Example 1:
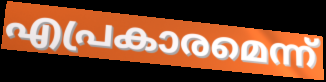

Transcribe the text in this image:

എപ്രകാരമെന്ന്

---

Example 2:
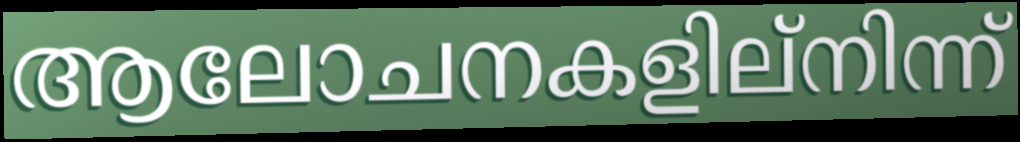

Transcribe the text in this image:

ആലോചനകളില്നിന്ന്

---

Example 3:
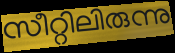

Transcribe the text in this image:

സീറ്റിലിരുന്നു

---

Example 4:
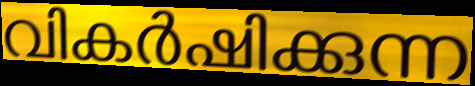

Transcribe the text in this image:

വികർഷിക്കുന്ന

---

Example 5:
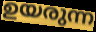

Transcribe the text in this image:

ഉയരുന്ന